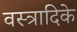
वस्त्रादिके